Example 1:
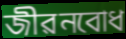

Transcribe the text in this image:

জীৱনবোধ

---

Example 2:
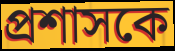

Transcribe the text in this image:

প্ৰশাসকে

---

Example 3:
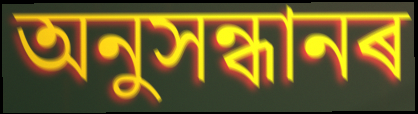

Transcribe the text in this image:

অনুসন্ধানৰ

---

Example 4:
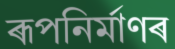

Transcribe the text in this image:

ৰূপনিৰ্মাণৰ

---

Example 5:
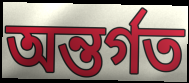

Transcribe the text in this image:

অন্তৰ্গত